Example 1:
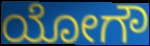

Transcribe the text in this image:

ಯೋಗೌ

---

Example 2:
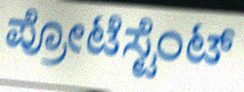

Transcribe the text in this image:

ಪ್ರೋಟೆಸ್ಟೆಂಟ್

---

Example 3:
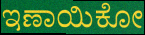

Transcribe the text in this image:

ಇಣಾಯಿಕೋ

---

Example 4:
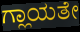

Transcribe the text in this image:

ಗ್ಲಾಯತೇ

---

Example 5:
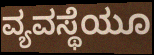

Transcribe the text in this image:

ವ್ಯವಸ್ಥೆಯೂ